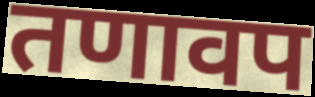
तणावप